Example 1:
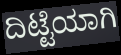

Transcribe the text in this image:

ದಿಟ್ಟೆಯಾಗಿ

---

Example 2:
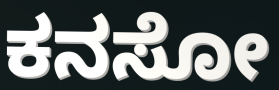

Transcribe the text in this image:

ಕನಸೋ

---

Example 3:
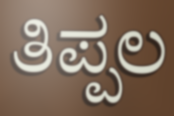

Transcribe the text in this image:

ತಿಪ್ಪಲ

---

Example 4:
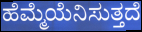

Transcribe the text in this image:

ಹೆಮ್ಮೆಯೆನಿಸುತ್ತದೆ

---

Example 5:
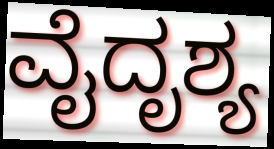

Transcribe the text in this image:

ವೈದೃಶ್ಯ